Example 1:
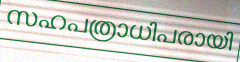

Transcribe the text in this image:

സഹപത്രാധിപരായി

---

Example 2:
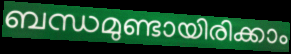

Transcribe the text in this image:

ബന്ധമുണ്ടായിരിക്കാം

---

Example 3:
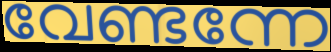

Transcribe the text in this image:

വേണ്ടന്നേ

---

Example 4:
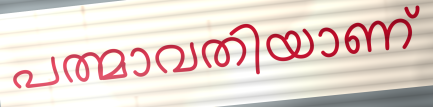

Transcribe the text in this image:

പത്മാവതിയാണ്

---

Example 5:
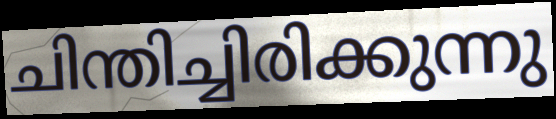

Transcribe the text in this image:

ചിന്തിച്ചിരിക്കുന്നു